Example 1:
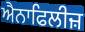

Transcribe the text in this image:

ਐਨਾਫਿਲੀਜ਼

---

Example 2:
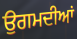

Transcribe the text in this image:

ਉਗਮਦੀਆਂ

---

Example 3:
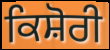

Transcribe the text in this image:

ਕਿਸ਼ੋਰੀ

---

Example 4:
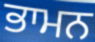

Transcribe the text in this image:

ਭਾਮਨ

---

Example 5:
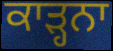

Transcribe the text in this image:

ਕਾੜ੍ਹਨਾ